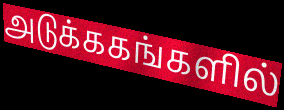
அடுக்ககங்களில்